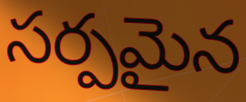
సర్పమైన